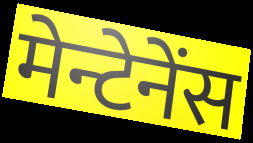
मेन्टेनेंस